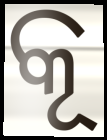
କୂ